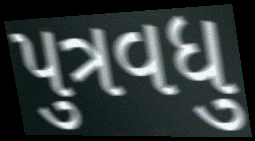
પુત્રવધુ